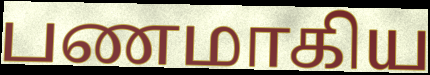
பணமாகிய